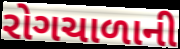
રોગચાળાની